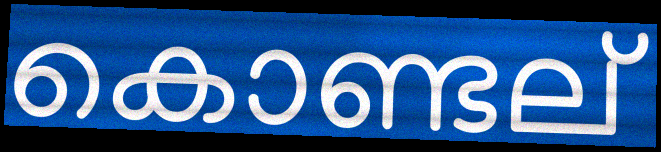
കൊണ്ടല്